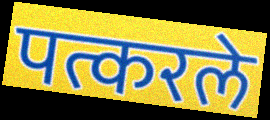
पत्करले